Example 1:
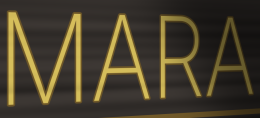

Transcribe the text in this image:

MARA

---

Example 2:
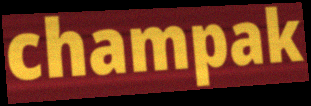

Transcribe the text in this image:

champak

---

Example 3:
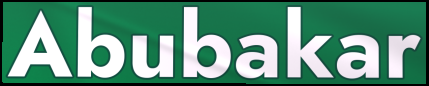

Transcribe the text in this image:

Abubakar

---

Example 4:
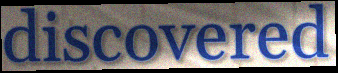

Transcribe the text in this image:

discovered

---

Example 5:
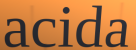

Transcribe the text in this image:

acida